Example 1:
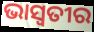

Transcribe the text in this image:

ଭାସ୍ୱତୀର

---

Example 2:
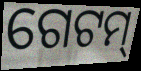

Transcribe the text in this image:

ଗେଟମ୍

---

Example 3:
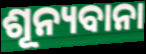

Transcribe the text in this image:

ଶୂନ୍ୟବାନା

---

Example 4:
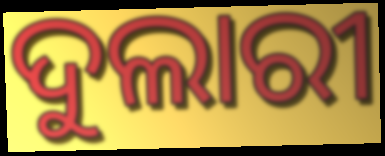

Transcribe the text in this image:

ଦୁଲାରୀ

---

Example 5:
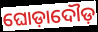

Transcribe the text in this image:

ଘୋଡ଼ାଦୌଡ଼